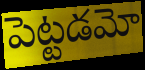
పెట్టడమో